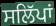
ਸਲਿੱਪਾਂ